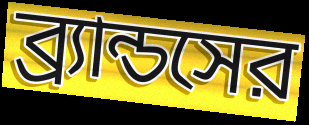
ব্র্যান্ডসের